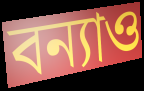
বন্যাও